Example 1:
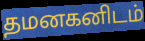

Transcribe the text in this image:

தமனகனிடம்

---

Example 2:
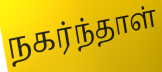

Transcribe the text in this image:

நகர்ந்தாள்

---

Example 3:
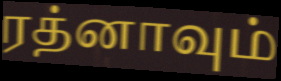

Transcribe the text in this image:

ரத்னாவும்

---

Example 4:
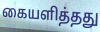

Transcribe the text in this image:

கையளித்தது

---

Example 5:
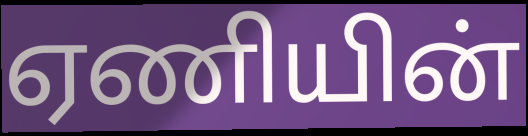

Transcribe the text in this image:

ஏணியின்